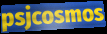
psjcosmos